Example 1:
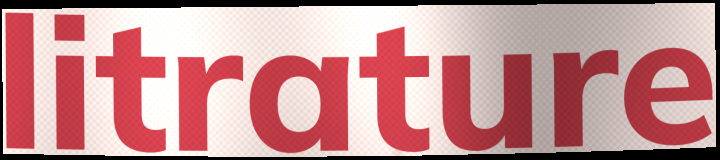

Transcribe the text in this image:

litrature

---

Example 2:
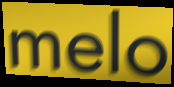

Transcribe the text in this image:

melo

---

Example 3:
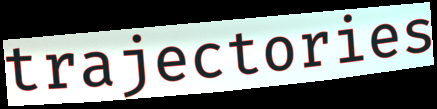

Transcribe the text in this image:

trajectories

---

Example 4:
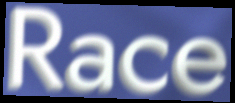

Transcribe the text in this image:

Race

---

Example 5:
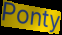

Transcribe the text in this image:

Ponty